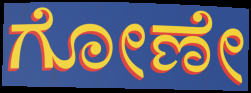
ಗೋಣೇ